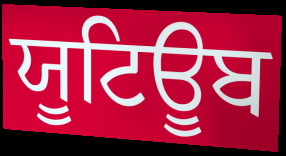
ਯੂਟਿਊਬ